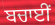
ਬਚਾਈਂ